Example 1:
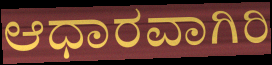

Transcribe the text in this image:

ಆಧಾರವಾಗಿರಿ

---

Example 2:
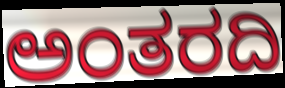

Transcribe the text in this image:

ಅಂತರದಿ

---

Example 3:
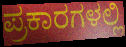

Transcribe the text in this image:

ಪ್ರಕಾರಗಳಲ್ಲಿ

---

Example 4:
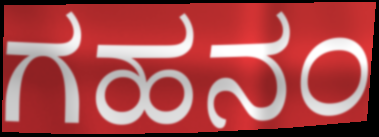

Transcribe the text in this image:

ಗಹನಂ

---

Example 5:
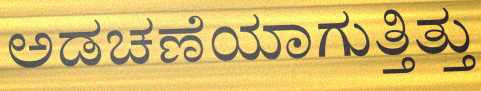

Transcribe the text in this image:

ಅಡಚಣೆಯಾಗುತ್ತಿತ್ತು